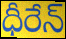
ధీరేన్